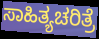
ಸಾಹಿತ್ಯಚರಿತ್ರೆ